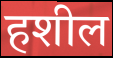
हशील